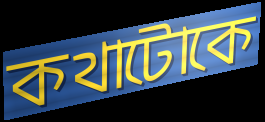
কথাটোকে